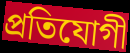
প্ৰতিযোগী